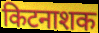
किटनाशक